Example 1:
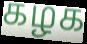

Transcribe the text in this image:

கழக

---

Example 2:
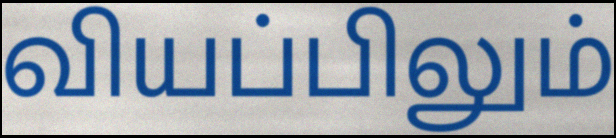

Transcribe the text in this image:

வியப்பிலும்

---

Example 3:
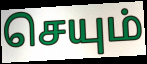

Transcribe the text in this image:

செயும்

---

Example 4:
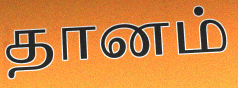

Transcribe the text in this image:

தானம்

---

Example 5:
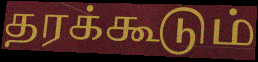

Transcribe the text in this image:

தரக்கூடும்